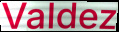
Valdez